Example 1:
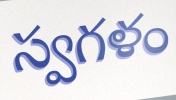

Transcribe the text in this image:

స్వగళం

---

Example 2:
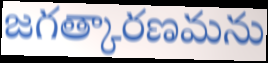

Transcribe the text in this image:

జగత్కారణమను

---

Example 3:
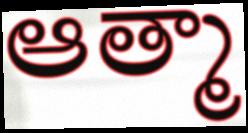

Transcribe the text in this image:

ఆత్మా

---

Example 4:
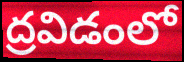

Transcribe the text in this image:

ద్రవిడంలో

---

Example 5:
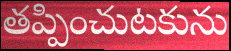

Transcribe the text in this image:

తప్పించుటకును